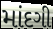
માંદગી